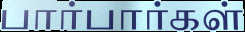
பார்பார்கள்